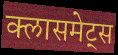
क्लासमेट्स